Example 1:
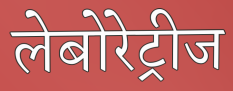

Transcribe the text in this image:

लेबोरेट्रीज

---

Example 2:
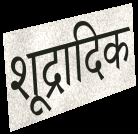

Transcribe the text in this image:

शूद्रादिक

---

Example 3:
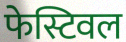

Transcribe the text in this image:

फेस्टिवल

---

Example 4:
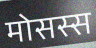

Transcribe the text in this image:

मोसस्स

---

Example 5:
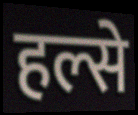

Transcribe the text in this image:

हल्से